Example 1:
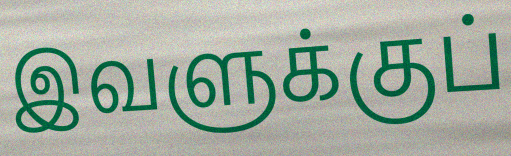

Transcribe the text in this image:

இவளுக்குப்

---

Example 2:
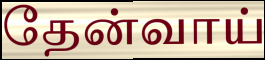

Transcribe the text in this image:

தேன்வாய்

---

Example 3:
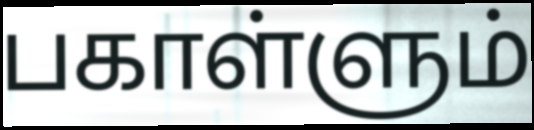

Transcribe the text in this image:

பகாள்ளும்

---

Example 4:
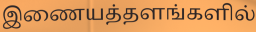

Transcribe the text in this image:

இணையத்தளங்களில்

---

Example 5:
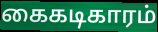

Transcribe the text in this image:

கைகடிகாரம்